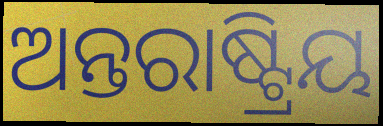
ଅନ୍ତରାଷ୍ଟ୍ରିୟ